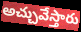
అచ్చువేస్తారు